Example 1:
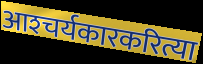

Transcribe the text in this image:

आश्‍चर्यकारकरित्या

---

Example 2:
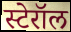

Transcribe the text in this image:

स्टेरॉल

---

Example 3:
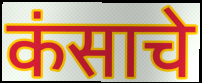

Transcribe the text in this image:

कंसाचे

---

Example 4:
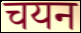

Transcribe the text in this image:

चयन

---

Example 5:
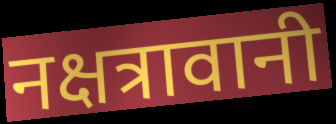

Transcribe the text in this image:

नक्षत्रावानी